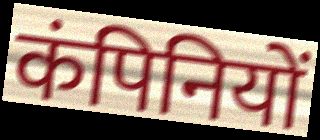
कंपिनियों